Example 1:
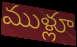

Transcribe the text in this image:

ముళ్లూ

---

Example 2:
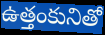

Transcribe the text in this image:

ఉత్తంకునితో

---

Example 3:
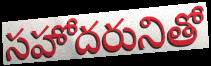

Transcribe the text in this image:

సహోదరునితో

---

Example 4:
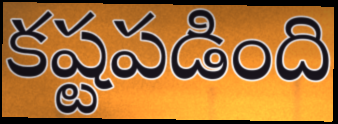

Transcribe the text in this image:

కష్టపడింది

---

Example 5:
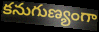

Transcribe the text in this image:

కనుగుణ్యంగా